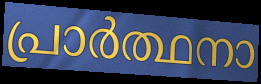
പ്രാർത്ഥനാ